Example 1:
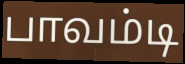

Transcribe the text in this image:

பாவம்டி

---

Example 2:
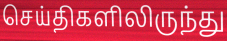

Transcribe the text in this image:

செய்திகளிலிருந்து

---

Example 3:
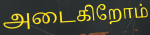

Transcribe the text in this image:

அடைகிறோம்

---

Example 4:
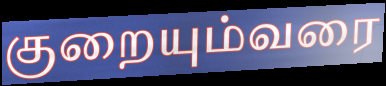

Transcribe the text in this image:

குறையும்வரை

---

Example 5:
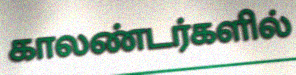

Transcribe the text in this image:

காலண்டர்களில்